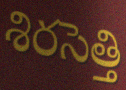
శిరసెత్తి